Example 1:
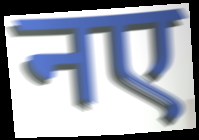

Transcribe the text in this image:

नए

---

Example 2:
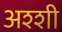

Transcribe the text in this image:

अश्शी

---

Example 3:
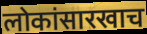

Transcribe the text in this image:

लोकांसारखाच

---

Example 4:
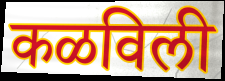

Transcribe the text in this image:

कळविली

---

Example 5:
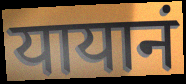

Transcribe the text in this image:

यायानं